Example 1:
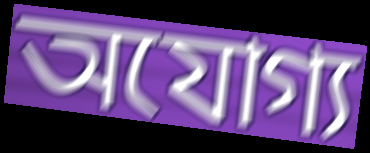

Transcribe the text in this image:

অযোগ্য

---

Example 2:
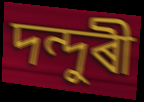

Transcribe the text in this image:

দন্দুৰী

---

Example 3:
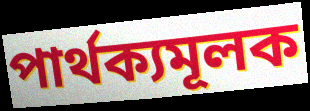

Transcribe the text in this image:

পাৰ্থক্যমূলক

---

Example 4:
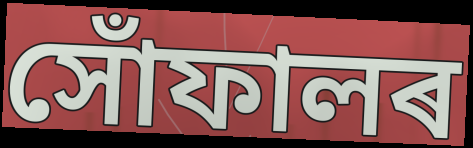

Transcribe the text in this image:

সোঁফালৰ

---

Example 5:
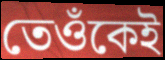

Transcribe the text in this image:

তেওঁকেই